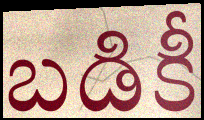
బడికీ